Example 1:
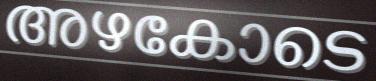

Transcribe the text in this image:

അഴകോടെ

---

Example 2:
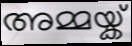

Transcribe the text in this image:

അമ്മയ്ക്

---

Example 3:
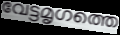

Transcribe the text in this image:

വേട്ടമൃഗത്തെ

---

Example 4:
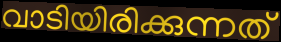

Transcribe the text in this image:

വാടിയിരിക്കുന്നത്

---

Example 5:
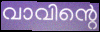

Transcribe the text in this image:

വാവിന്റെ